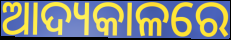
ଆଦ୍ୟକାଳରେ